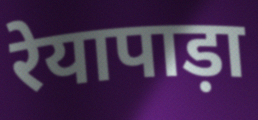
रेयापाड़ा